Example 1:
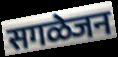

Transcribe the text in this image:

सगळेजन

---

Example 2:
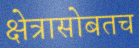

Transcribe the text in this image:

क्षेत्रासोबतच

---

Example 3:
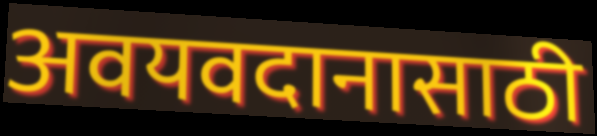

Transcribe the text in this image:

अवयवदानासाठी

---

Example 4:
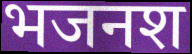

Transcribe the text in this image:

भजनश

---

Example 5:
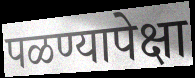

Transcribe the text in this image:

पळण्यापेक्षा